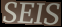
SEIS